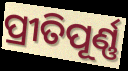
ପ୍ରୀତିପୂର୍ଣ୍ଣ